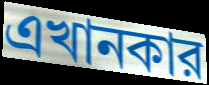
এখানকার